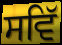
ਸਵਿੱ